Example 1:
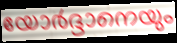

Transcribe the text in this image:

യോർദ്ദാനെയും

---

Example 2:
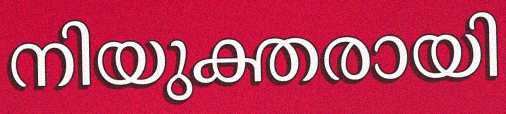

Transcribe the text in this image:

നിയുക്തരായി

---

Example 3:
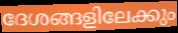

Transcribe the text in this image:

ദേശങ്ങളിലേക്കും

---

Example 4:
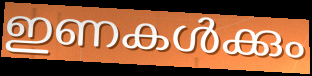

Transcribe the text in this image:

ഇണകൾക്കും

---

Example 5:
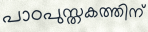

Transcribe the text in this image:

പാഠപുസ്തകത്തിന്